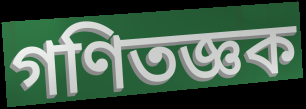
গণিতজ্ঞক